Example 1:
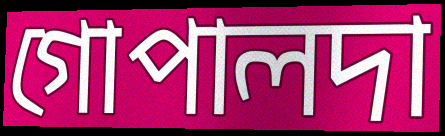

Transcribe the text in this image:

গোপালদা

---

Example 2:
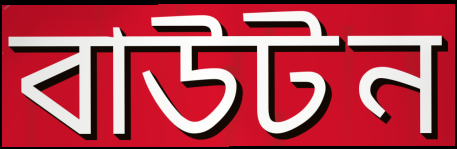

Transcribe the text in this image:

বাউটন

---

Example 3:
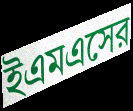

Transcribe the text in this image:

ইএমএসের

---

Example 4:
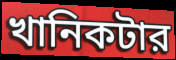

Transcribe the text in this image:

খানিকটার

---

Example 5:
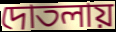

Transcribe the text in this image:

দোতলায়